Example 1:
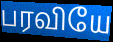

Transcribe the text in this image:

பரவியே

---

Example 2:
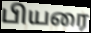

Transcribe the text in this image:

பியரை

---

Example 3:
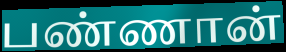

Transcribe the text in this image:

பண்ணான்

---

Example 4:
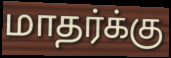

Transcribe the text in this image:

மாதர்க்கு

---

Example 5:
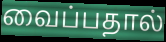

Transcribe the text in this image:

வைப்பதால்